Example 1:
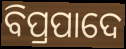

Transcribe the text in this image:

ବିପ୍ରପାଦେ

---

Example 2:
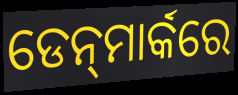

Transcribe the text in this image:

ଡେନ୍‍ମାର୍କରେ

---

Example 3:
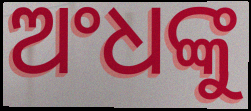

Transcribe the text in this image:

ଅଂଧଙ୍କୁ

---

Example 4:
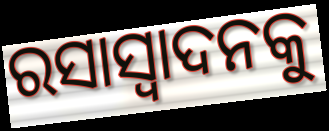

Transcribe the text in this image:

ରସାସ୍ୱାଦନକୁ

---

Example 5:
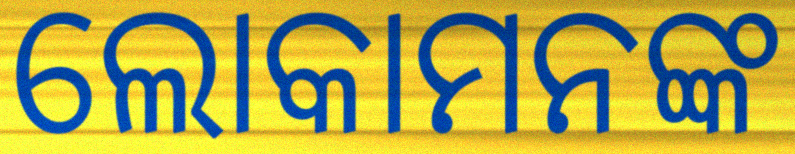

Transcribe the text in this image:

ଲୋକାମନଙ୍କ